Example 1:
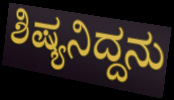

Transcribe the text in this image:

ಶಿಷ್ಯನಿದ್ದನು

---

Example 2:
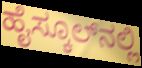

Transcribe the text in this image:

ಹೈಸ್ಕೂಲ್‍ನಲ್ಲಿ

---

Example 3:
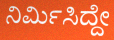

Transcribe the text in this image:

ನಿರ್ಮಿಸಿದ್ದೇ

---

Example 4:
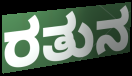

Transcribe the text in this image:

ರತುನ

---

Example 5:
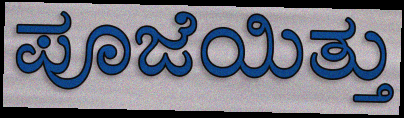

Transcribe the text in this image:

ಪೂಜೆಯಿತ್ತು